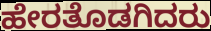
ಹೇರತೊಡಗಿದರು